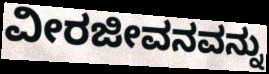
ವೀರಜೀವನವನ್ನು